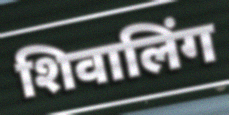
शिवालिंग